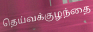
தெய்வக்குழந்தை